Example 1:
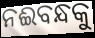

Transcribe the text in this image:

ନଈବନ୍ଧକୁ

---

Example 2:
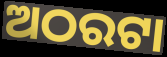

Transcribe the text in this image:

ଅଠରଟା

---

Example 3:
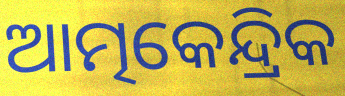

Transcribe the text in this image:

ଆତ୍ମକେନ୍ଦ୍ରିକ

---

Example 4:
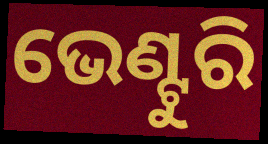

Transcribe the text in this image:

ଭେଣ୍ଟୁରି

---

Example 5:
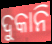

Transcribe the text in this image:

ଦୁକାନି